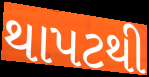
થાપટથી